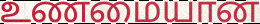
உணமையான